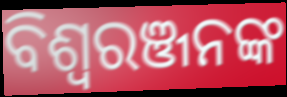
ବିଶ୍ବରଞ୍ଜନଙ୍କ